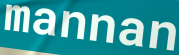
mannan